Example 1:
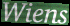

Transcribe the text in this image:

Wiens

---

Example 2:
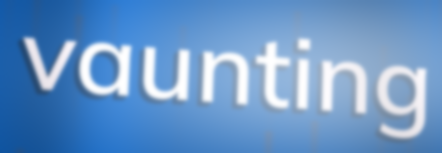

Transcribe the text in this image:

vaunting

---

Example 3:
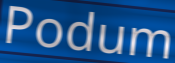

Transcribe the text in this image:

Podum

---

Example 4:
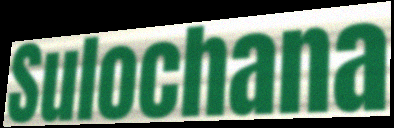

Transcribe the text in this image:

Sulochana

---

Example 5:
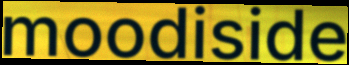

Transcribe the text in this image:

moodiside